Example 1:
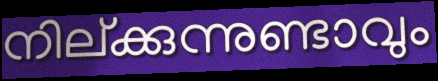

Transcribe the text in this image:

നില്ക്കുന്നുണ്ടാവും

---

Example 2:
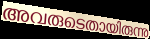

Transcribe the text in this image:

അവരുടെതായിരുന്നു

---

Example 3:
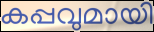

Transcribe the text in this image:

കപ്പവുമായി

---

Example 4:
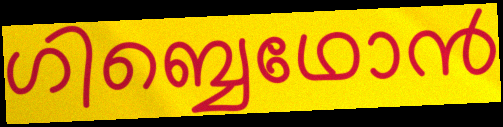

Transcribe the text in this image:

ഗിബ്ബെഥോൻ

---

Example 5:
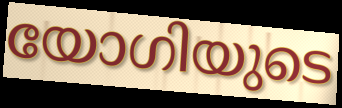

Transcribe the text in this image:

യോഗിയുടെ